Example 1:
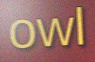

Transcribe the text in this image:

owl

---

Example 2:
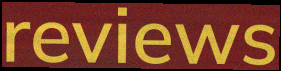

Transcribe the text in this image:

reviews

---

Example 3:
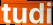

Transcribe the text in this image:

tudi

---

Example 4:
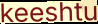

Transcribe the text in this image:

keeshtu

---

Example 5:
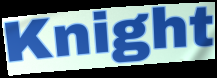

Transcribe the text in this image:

Knight